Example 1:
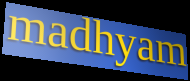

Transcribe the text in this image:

madhyam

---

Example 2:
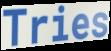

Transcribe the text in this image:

Tries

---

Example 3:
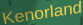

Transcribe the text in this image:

Kenorland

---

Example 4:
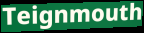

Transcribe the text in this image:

Teignmouth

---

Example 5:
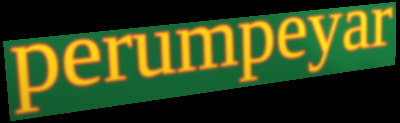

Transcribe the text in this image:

perumpeyar